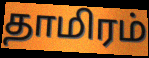
தாமிரம்